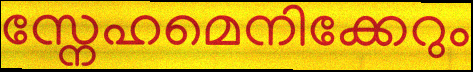
സ്നേഹമെനിക്കേറും